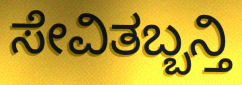
ಸೇವಿತಬ್ಬನ್ತಿ